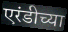
एरंडीच्या